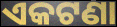
ଏକଟଣା